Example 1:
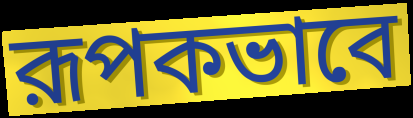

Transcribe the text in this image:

রূপকভাবে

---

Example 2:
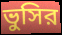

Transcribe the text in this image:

ভুসির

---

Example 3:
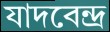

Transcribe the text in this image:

যাদবেন্দ্র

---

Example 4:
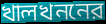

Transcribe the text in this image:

খালখননের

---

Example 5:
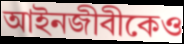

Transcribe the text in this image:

আইনজীবীকেও